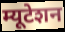
म्यूटेशन